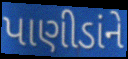
પાણીડાંને